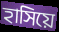
হাসিয়ে